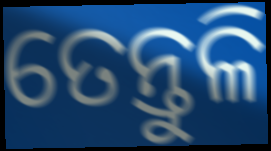
ତେନ୍ତୁଳି